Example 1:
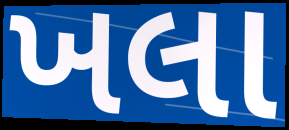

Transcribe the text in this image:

ખલા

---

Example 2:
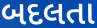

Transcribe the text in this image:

બદલતા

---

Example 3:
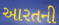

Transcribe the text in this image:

આરતની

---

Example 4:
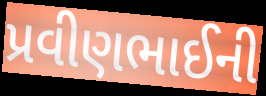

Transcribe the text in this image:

પ્રવીણભાઈની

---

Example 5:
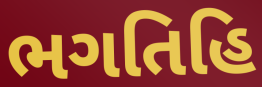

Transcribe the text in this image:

ભગતિહિ